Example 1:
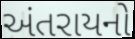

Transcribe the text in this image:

અંતરાયનો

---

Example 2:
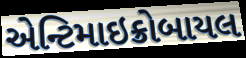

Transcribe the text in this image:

એન્ટિમાઇક્રોબાયલ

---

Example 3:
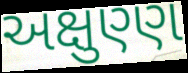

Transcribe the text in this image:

અક્ષુણ્ણ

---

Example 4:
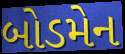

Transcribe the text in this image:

બોડમેન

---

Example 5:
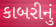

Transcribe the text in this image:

કાબરીનું